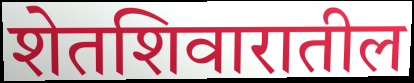
शेतशिवारातील